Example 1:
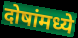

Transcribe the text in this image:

दोषांमध्ये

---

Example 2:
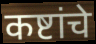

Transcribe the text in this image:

कष्टांचे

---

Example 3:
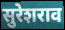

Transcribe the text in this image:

सुरेशराव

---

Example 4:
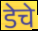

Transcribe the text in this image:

डेचे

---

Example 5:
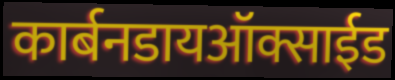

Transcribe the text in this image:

कार्बनडायऑक्साईड